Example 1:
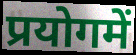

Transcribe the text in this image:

प्रयोगमें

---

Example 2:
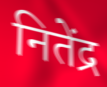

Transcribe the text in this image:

नितेंद्र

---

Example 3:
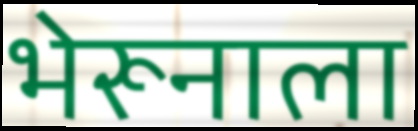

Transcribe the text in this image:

भेरूनाला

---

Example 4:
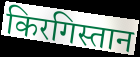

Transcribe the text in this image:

किरगिस्तान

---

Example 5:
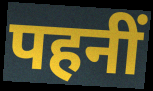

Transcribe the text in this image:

पहनीं